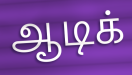
ஆடிக்